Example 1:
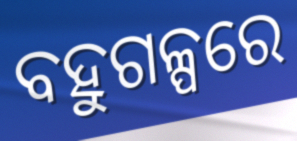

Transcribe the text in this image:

ବହୁଗଳ୍ପରେ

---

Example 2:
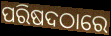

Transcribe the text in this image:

ପରିଷଦଠାରେ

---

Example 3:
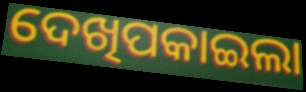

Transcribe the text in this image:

ଦେଖିପକାଇଲା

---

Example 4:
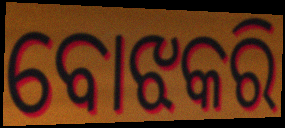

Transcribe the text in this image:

ବୋଝକରି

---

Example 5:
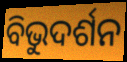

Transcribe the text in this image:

ବିଭୁଦର୍ଶନ